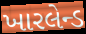
ખારલેન્ડ